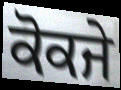
ਕੋਕਜੇ